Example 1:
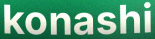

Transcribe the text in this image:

konashi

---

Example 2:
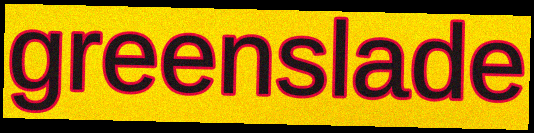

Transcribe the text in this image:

greenslade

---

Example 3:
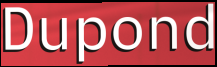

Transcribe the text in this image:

Dupond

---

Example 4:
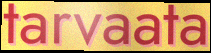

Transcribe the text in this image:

tarvaata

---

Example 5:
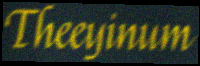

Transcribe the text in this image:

Theeyinum